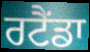
ਰਟੈਂਡਾ